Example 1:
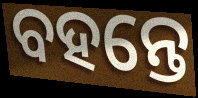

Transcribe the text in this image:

ବହନ୍ତେ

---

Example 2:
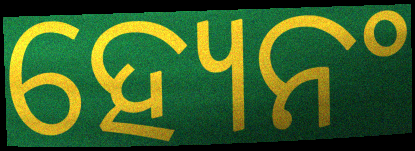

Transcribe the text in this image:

ହ୍ୟେନଂ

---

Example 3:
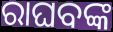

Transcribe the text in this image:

ରାଘବଙ୍କ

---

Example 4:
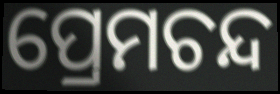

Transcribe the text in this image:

ପ୍ରେମଚନ୍ଦ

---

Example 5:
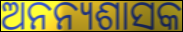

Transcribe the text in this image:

ଅନନ୍ୟଶାସକ